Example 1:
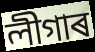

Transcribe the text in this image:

লীগাৰ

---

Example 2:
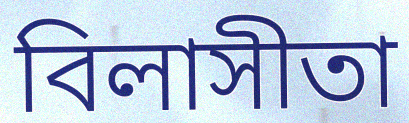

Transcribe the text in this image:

বিলাসীতা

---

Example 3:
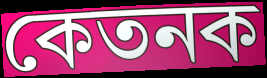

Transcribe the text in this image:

কেতনক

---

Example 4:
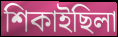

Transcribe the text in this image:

শিকাইছিলা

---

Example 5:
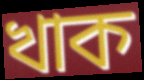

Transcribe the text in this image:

খাক